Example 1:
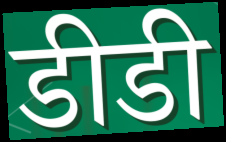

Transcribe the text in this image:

डीडी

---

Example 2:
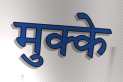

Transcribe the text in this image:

मुक्‍के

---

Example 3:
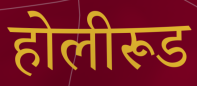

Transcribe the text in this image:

होलीरूड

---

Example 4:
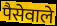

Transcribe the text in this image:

पैसेवाले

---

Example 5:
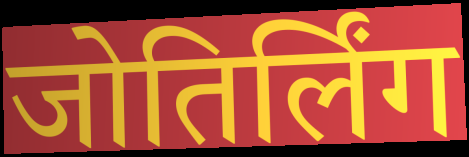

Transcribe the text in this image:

जोतिर्लिंग